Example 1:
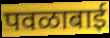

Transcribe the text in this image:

पवळाबाई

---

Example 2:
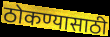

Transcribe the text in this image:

ठोकण्यासाठी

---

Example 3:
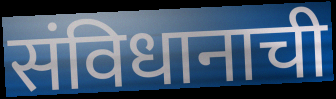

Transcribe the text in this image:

संविधानाची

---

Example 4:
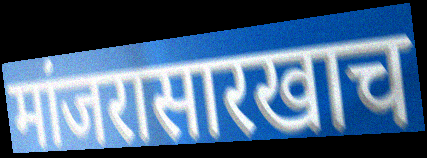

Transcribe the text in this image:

मांजरासारखाच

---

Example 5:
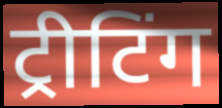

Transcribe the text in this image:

ट्रीटिंग